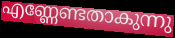
എണ്ണേണ്ടതാകുന്നു